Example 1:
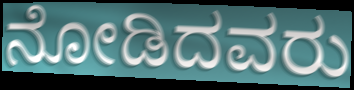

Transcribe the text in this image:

ನೋಡಿದವರು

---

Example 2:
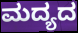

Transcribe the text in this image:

ಮದ್ಯದ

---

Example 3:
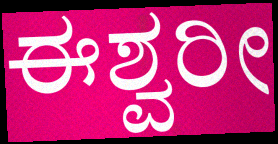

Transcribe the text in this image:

ಈಶ್ವರೀ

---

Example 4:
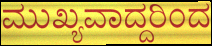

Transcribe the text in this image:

ಮುಖ್ಯವಾದ್ದರಿಂದ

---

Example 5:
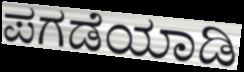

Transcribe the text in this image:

ಪಗಡೆಯಾಡಿ